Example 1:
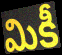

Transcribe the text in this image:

మికీ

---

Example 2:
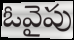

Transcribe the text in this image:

ఓవైపు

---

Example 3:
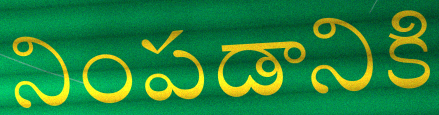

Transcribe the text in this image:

నింపడానికి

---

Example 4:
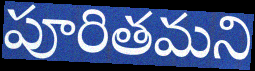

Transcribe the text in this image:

పూరితమని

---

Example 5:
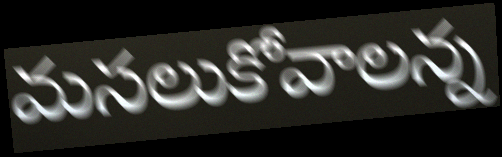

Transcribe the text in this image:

మసలుకోవాలన్న